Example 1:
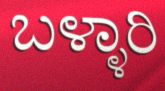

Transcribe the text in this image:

ಬಳ್ಳಾರಿ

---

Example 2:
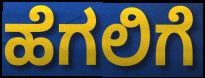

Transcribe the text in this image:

ಹೆಗಲಿಗೆ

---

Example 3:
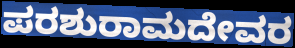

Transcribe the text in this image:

ಪರಶುರಾಮದೇವರ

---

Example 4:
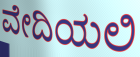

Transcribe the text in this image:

ವೇದಿಯಲಿ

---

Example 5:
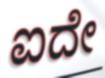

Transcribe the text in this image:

ಐದೇ